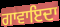
ਗਾਵਾਇਦਾ